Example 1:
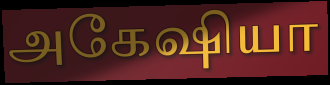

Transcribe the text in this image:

அகேஷியா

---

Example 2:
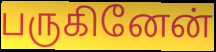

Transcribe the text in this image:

பருகினேன்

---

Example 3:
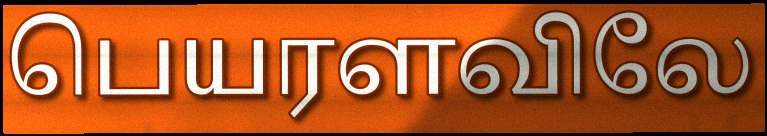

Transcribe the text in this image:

பெயரளவிலே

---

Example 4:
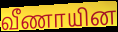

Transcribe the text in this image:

வீணாயின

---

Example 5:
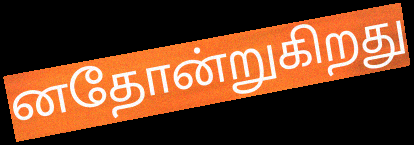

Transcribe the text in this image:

னதோன்றுகிறது